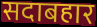
सदाबहार